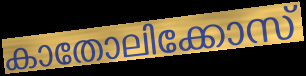
കാതോലിക്കോസ്